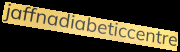
jaffnadiabeticcentre